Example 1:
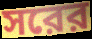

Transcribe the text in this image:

সরের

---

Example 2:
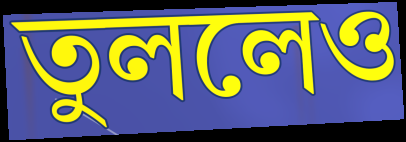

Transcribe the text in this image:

তুললেও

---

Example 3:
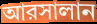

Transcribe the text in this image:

আরসালান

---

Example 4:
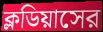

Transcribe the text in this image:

ক্লডিয়াসের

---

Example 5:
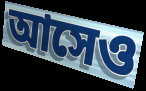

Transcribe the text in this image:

আসেও